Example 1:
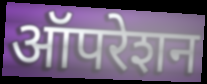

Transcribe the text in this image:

ऑपरेशन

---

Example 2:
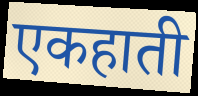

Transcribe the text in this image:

एकहाती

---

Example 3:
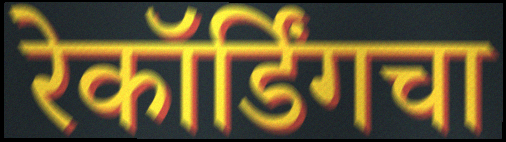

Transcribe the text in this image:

रेकॉर्डिंगचा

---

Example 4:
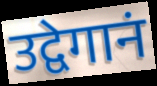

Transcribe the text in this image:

उद्वेगानं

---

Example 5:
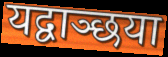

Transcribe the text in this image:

यद्वाञ्छया